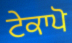
ਟੇਕਾਪੋ